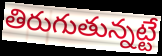
తిరుగుతున్నట్టే